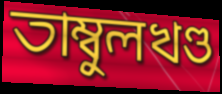
তাম্বুলখণ্ড